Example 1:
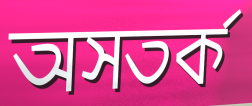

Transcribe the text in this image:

অসতর্ক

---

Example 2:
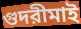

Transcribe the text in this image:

গুদরীমাই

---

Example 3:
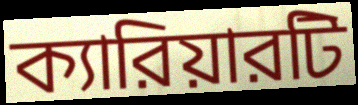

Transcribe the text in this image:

ক্যারিয়ারটি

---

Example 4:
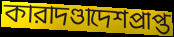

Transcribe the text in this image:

কারাদণ্ডাদেশপ্রাপ্ত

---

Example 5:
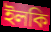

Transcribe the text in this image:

ইলকি